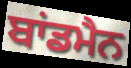
ਬਾਂਡਮੈਨ